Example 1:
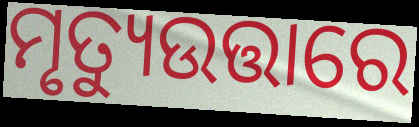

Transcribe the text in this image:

ମୃତ୍ୟୁଉତ୍ତାରେ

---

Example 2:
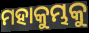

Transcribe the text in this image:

ମହାକୁମ୍ଭକୁ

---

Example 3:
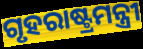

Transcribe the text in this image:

ଗୃହରାଷ୍ଟ୍ରମନ୍ତ୍ରୀ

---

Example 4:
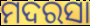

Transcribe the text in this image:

ମଦରସା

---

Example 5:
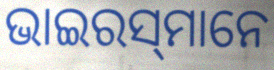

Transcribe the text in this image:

ଭାଇରସ୍‌ମାନେ